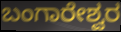
ಬಂಗಾರೇಶ್ವರ